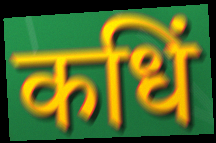
कधिं